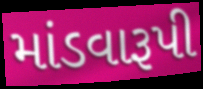
માંડવારૂપી